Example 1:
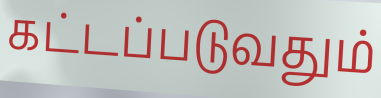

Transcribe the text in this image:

கட்டப்படுவதும்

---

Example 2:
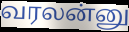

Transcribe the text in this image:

வரலன்னு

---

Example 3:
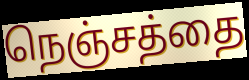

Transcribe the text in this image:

நெஞ்சத்தை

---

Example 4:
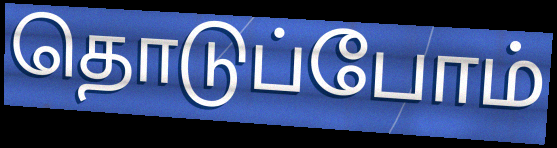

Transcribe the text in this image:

தொடுப்போம்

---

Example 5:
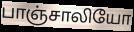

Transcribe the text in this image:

பாஞ்சாலியோ